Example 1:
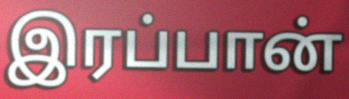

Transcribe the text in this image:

இரப்பான்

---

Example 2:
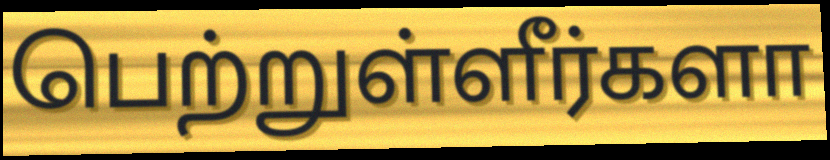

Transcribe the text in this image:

பெற்றுள்ளீர்களா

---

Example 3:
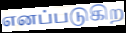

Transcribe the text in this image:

எனப்படுகிற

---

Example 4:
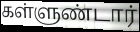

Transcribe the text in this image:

கள்ளுண்டார்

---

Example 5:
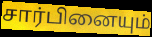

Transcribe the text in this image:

சார்பினையும்